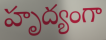
హృద్యంగా